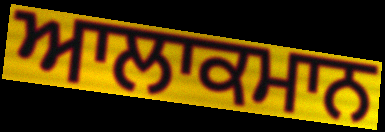
ਆਲਾਕਮਾਨ